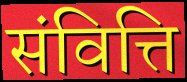
संवित्ति